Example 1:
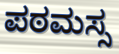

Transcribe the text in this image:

ಪಠಮಸ್ಸ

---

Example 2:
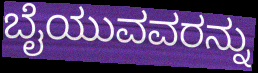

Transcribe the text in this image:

ಬೈಯುವವರನ್ನು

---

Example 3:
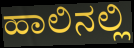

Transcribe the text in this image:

ಹಾಲಿನಲ್ಲಿ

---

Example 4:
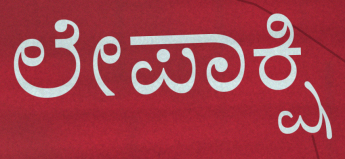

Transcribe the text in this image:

ಲೇಪಾಕ್ಷಿ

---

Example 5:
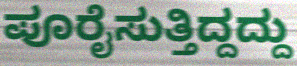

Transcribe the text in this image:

ಪೂರೈಸುತ್ತಿದ್ದದ್ದು